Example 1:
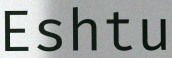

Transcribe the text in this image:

Eshtu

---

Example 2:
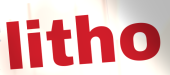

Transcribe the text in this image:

litho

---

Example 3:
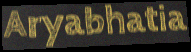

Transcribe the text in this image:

Aryabhatia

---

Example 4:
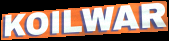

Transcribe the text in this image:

KOILWAR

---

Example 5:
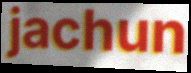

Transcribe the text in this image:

jachun